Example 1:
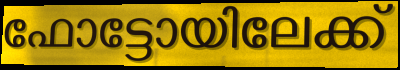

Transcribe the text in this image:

ഫോട്ടോയിലേക്ക്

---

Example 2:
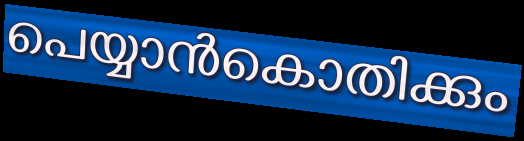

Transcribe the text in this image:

പെയ്യാൻകൊതിക്കും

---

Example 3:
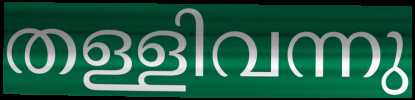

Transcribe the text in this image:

തള്ളിവന്നു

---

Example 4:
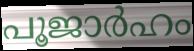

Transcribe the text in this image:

പൂജാർഹം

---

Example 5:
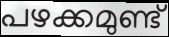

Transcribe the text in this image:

പഴക്കമുണ്ട്